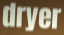
dryer